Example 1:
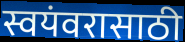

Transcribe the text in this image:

स्वयंवरासाठी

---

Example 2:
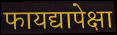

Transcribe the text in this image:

फायद्यापेक्षा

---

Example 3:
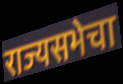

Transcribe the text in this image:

राज्यसभेचा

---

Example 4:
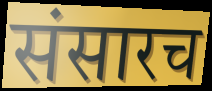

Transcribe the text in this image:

संसारच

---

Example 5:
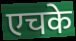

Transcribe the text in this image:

एचके